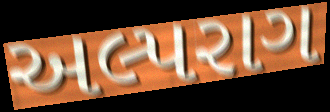
અલ્પરાગ